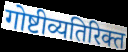
गोष्टीव्यतिरिक्त